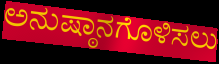
ಅನುಷ್ಠಾನಗೊಳಿಸಲು